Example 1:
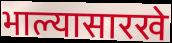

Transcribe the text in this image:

भाल्यासारखे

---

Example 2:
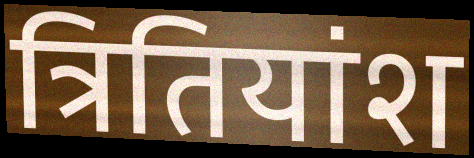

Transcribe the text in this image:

त्रितियांश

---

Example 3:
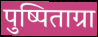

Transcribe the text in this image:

पुष्पिताग्रा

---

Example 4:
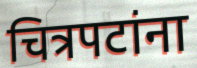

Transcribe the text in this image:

चित्रपटांना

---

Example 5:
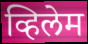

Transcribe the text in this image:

व्हिलेम